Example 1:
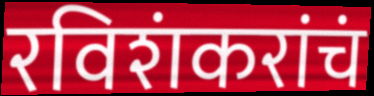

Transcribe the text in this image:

रविशंकरांचं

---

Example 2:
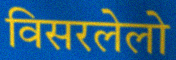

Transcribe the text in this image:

विसरलेलो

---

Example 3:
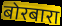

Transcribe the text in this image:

बोरबारा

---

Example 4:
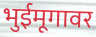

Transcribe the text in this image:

भुईमूगावर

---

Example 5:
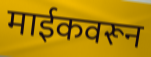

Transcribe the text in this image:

माईकवरून